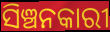
ସିଞ୍ଚନକାରୀ